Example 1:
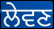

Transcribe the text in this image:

ਲੇਵਣ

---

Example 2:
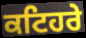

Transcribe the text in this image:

ਕਟਿਹਰੇ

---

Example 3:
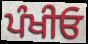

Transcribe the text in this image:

ਪੰਖੀਓ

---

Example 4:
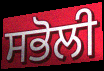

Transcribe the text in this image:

ਸਭੋਲੀ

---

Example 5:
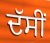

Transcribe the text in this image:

ਦੱਸੀਂ